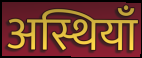
अस्थियाँ